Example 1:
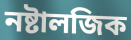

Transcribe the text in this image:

নষ্টালজিক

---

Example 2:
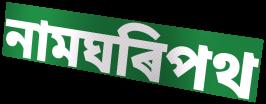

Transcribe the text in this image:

নামঘৰিপথ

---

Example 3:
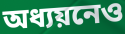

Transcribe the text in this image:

অধ্যয়নেও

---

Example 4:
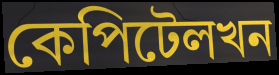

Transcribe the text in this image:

কেপিটেলখন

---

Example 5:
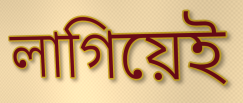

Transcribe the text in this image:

লাগিয়েই